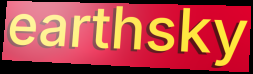
earthsky